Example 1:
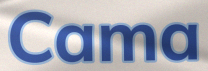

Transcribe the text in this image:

Cama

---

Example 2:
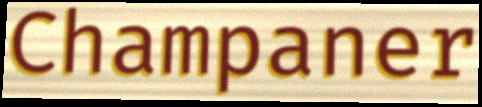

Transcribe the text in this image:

Champaner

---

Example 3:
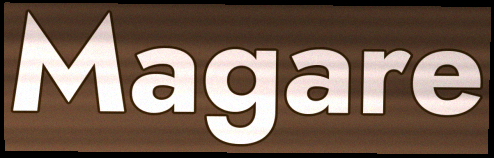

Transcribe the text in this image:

Magare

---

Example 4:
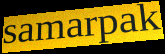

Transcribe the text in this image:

samarpak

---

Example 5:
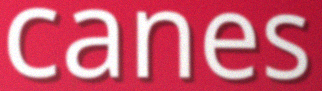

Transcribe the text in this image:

canes